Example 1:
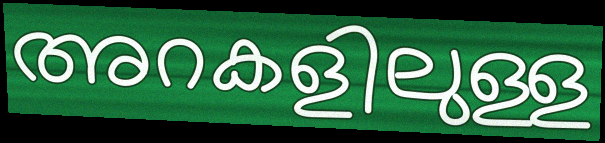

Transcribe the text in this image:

അറകളിലുള്ള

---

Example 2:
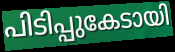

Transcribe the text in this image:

പിടിപ്പുകേടായി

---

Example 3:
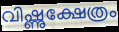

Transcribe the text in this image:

വിഷ്ണുക്ഷേത്രം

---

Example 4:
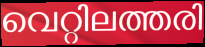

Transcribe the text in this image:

വെറ്റിലത്തരി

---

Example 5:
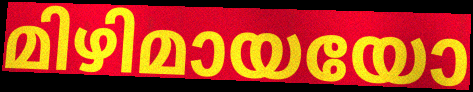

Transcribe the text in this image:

മിഴിമായയോ